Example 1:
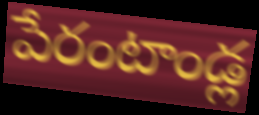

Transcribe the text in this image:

పేరంటాండ్ల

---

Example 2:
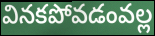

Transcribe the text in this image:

వినకపోవడంవల్ల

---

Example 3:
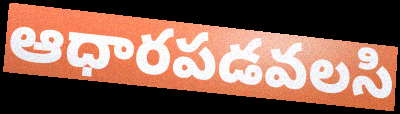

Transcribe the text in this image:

ఆధారపడవలసి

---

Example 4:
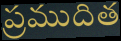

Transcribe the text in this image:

ప్రముదిత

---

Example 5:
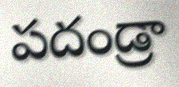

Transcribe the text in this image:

పదండ్రా